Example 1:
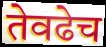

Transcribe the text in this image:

तेवढेच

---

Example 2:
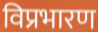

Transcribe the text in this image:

विप्रभारण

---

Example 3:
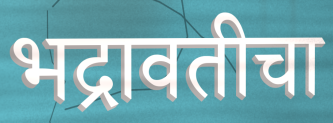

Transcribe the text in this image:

भद्रावतीचा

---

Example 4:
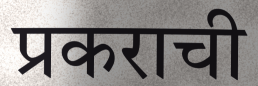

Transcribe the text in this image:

प्रकराची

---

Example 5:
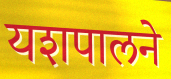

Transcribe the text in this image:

यशपालने